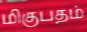
மிகுபதம்